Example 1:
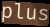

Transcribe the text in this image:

plus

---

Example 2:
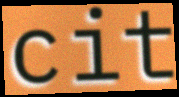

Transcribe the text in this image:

cit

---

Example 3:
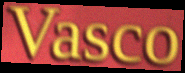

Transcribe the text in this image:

Vasco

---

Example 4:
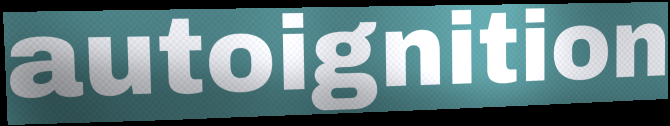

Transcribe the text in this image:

autoignition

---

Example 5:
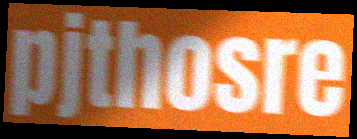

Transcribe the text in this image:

pjthosre